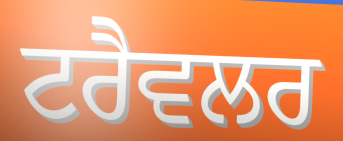
ਟਰੈਵਲਰ